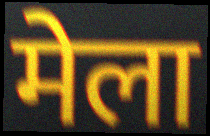
मेला